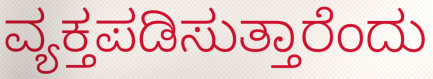
ವ್ಯಕ್ತಪಡಿಸುತ್ತಾರೆಂದು